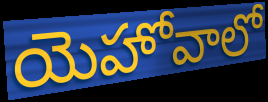
యెహోవాలో